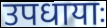
उपधायाः